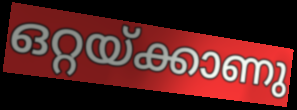
ഒറ്റയ്ക്കാണു